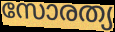
സോരത്യ